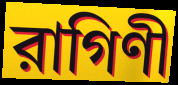
রাগিণী